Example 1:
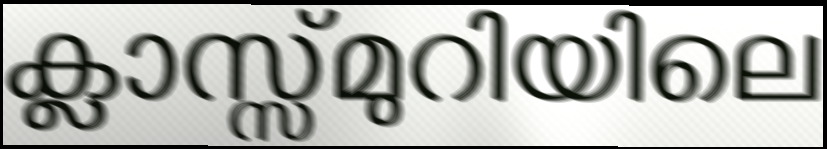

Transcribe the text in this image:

ക്ലാസ്സ്മുറിയിലെ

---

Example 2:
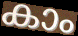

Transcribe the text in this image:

കാം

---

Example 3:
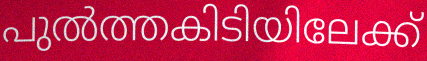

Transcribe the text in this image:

പുൽത്തകിടിയിലേക്ക്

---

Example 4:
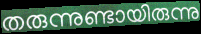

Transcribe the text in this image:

തരുന്നുണ്ടായിരുന്നു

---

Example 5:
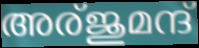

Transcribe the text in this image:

അര്ജുമന്ദ്